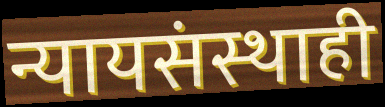
न्यायसंस्थाही